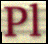
Pl